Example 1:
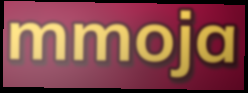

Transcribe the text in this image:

mmoja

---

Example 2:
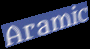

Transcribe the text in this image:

Aramic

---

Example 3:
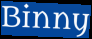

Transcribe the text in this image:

Binny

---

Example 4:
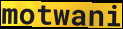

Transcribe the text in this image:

motwani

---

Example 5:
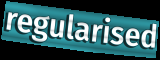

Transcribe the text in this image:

regularised